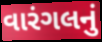
વારંગલનું